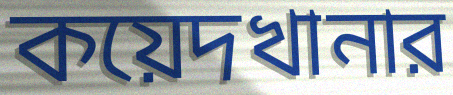
কয়েদখানার